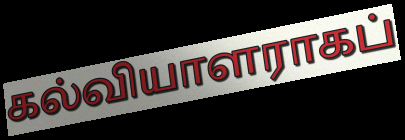
கல்வியாளராகப்